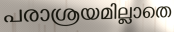
പരാശ്രയമില്ലാതെ